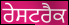
ਰੇਸਟਰੈਕ